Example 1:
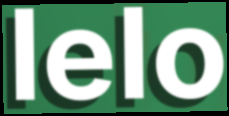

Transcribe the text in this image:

lelo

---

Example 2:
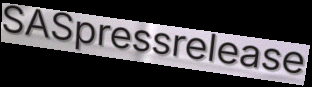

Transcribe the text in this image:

SASpressrelease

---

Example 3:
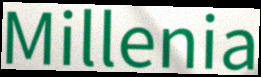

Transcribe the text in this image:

Millenia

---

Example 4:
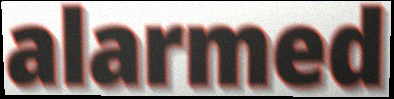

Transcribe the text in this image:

alarmed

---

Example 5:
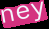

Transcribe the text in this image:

ney